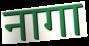
नागा